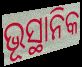
ଭୂସ୍ଥାନିକ